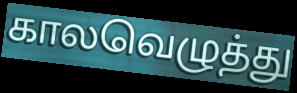
காலவெழுத்து